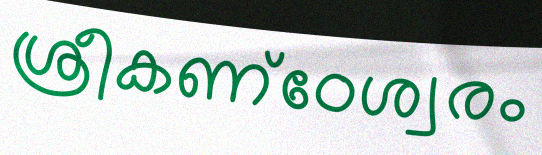
ശ്രീകണ്‌ഠേശ്വരം